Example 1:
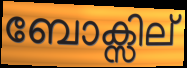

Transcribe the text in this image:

ബോക്സില്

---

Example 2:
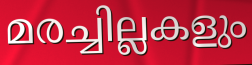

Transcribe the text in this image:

മരച്ചില്ലകളും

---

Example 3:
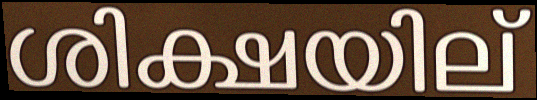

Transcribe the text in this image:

ശിക്ഷയില്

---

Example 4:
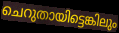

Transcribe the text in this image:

ചെറുതായിട്ടെങ്കിലും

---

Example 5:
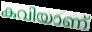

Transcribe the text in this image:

കവിയാണ്